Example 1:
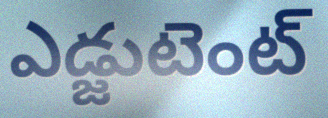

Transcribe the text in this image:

ఎడ్జుటెంట్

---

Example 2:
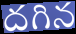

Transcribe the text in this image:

దగిన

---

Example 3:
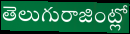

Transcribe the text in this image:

తెలుగురాజింట్లో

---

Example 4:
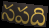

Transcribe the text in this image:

సపది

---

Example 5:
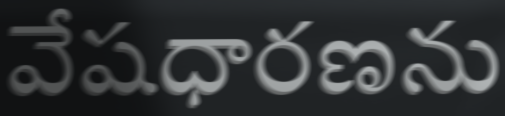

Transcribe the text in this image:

వేషధారణను